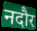
नदौर